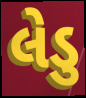
લેડુ